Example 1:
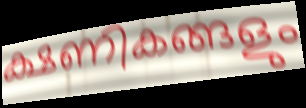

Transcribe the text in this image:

ക്ഷണികങ്ങളും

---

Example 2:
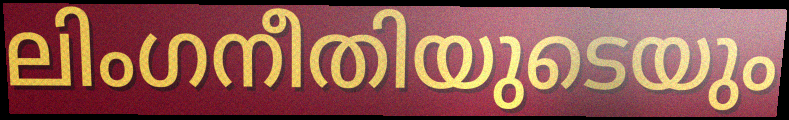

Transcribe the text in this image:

ലിംഗനീതിയുടെയും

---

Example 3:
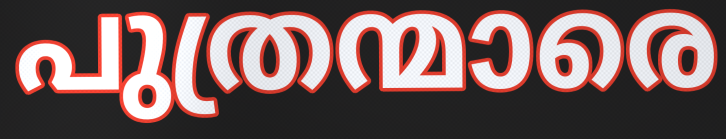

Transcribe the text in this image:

പുത്രന്മാരെ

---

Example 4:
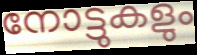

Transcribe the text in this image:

നോട്ടുകളും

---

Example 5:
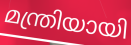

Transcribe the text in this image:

മന്ത്രിയായി